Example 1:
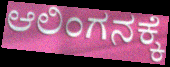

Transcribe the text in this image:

ಆಲಿಂಗನಕ್ಕೆ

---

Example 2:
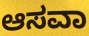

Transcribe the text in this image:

ಆಸವಾ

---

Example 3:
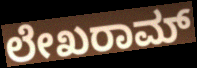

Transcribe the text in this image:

ಲೇಖರಾಮ್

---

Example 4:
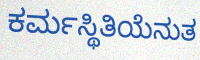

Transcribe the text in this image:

ಕರ್ಮಸ್ಥಿತಿಯೆನುತ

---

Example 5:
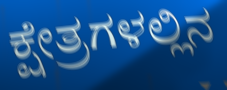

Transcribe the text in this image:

ಕ್ಷೇತ್ರಗಳಲ್ಲಿನ